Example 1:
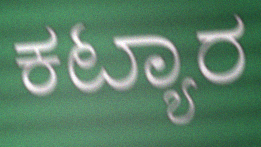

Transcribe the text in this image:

ಕಟ್ಯಾರ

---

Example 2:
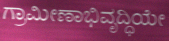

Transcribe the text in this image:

ಗ್ರಾಮೀಣಾಭಿವೃದ್ಧಿಯೇ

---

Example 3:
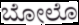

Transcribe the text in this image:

ಬೋಲೊ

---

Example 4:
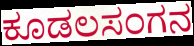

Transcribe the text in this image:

ಕೂಡಲಸಂಗನ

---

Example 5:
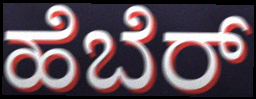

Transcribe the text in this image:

ಹೆಬೆರ್